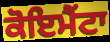
ਕੋਇਮੈਂਟਾ